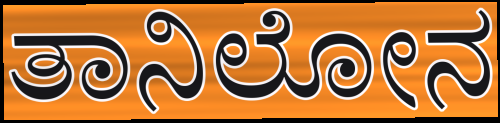
ತಾನಿಲೋನ